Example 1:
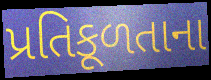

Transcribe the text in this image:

પ્રતિકૂળતાના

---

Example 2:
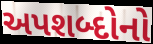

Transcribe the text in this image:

અપશબ્દોનો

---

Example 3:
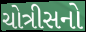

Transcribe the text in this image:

ચોત્રીસનો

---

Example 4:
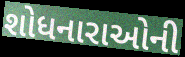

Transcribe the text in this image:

શોધનારાઓની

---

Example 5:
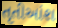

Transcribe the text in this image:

તૃતીઆંશ